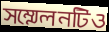
সম্মেলনটিও